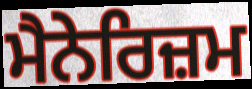
ਮੈਨੇਰਿਜ਼ਮ